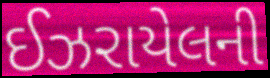
ઈઝરાયેલની